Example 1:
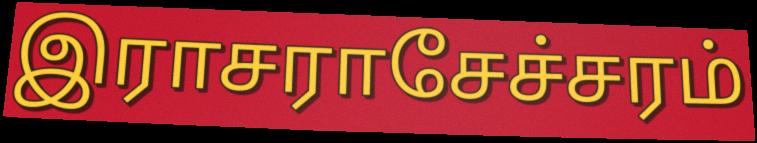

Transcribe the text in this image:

இராசராசேச்சரம்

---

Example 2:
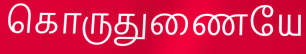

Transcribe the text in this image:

கொருதுணையே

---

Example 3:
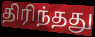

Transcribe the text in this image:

திரிந்தது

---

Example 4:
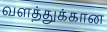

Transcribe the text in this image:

வளத்துக்கான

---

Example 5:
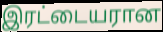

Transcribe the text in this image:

இரட்டையரான